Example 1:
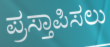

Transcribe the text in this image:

ಪ್ರಸ್ತಾಪಿಸಲು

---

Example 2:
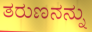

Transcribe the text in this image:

ತರುಣನನ್ನು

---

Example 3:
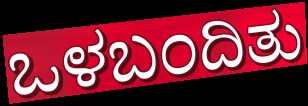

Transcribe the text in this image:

ಒಳಬಂದಿತು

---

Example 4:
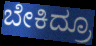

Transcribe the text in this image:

ಬೇಕಿದ್ರೂ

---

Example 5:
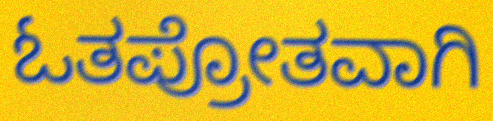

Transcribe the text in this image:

ಓತಪ್ರೋತವಾಗಿ